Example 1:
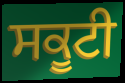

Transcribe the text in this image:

ਸਕੂਟੀ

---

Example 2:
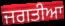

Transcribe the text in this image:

ਜਗਤੀਆ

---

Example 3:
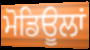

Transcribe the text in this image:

ਮੋਡਿਊਲਾਂ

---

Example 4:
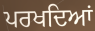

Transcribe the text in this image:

ਪਰਖਦਿਆਂ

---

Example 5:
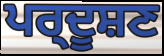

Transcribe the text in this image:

ਪਰ੍ਦੂਸ਼ਣ